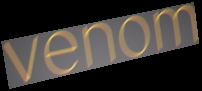
venom